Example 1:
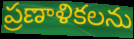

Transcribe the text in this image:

ప్రణాళికలను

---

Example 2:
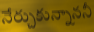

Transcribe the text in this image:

నేర్చుకున్నాననీ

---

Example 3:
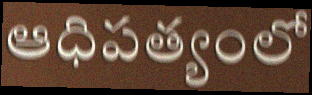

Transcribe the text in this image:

ఆధిపత్యంలో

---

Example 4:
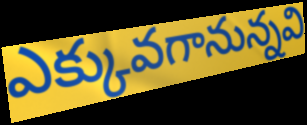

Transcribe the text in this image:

ఎక్కువగానున్నవి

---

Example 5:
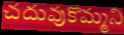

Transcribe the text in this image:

చదువుకొమ్మని